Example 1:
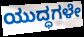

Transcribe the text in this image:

ಯುದ್ಧಗಳೇ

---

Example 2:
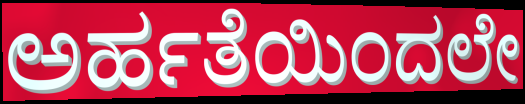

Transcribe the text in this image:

ಅರ್ಹತೆಯಿಂದಲೇ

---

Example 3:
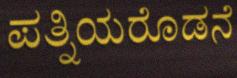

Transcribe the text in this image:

ಪತ್ನಿಯರೊಡನೆ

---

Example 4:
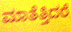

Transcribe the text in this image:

ಮಾತೆತ್ತಿದರೆ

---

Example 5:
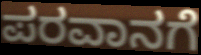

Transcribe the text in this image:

ಪರವಾನಗೆ